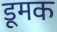
डूमक